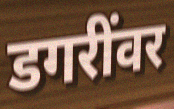
डगरींवर